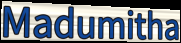
Madumitha